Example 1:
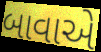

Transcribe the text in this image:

બાવાએ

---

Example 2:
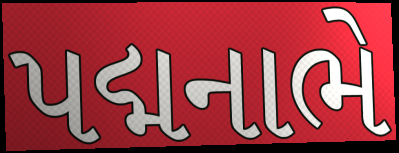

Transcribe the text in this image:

પદ્મનાભે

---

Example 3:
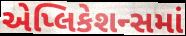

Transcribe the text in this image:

એપ્લિકેશન્સમાં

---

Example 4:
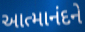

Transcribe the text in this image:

આત્માનંદને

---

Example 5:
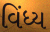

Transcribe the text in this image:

વિંધ્ય